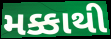
મક્કાથી